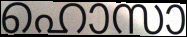
ഹൊസാ